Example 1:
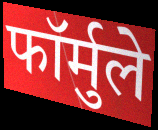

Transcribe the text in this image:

फॉर्मुले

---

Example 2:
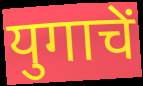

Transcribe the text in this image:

युगाचें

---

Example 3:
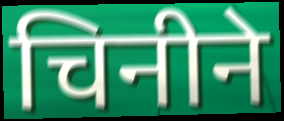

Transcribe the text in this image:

चिनीने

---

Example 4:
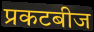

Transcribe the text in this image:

प्रकटबीज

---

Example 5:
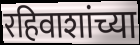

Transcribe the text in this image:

रहिवाशांच्या